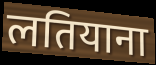
लतियाना